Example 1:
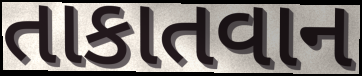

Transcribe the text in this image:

તાકાતવાન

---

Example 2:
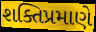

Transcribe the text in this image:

શક્તિપ્રમાણે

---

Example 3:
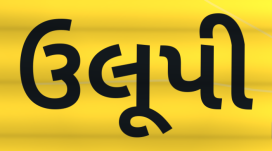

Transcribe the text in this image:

ઉલૂપી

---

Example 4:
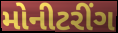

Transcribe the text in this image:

મોનીટરીંગ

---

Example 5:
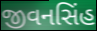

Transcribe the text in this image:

જીવનસિંહ